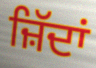
ਜ਼ਿੱਦਾਂ